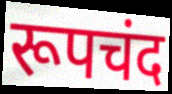
रूपचंद